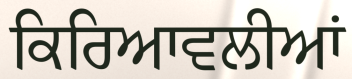
ਕਿਰਿਆਵਲੀਆਂ